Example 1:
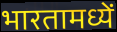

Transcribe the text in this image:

भारतामध्यें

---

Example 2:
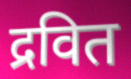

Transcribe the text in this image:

द्रवित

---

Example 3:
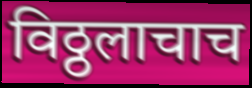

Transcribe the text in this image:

विठ्ठलाचाच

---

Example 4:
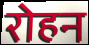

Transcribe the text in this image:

रोहन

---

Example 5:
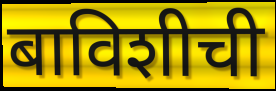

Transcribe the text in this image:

बाविशीची